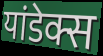
यांडेक्स